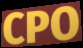
CPO